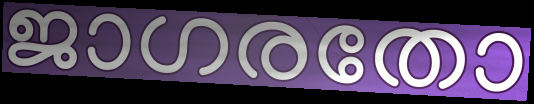
ജാഗരതോ